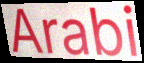
Arabi